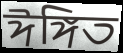
ঈঙ্গিত